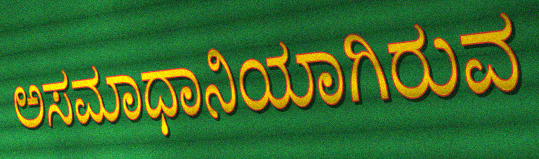
ಅಸಮಾಧಾನಿಯಾಗಿರುವ